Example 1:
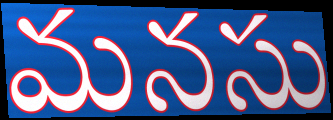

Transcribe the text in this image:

మనసు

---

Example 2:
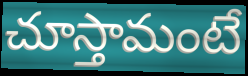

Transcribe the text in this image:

చూస్తామంటే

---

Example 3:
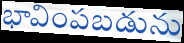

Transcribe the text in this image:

భావింపబడును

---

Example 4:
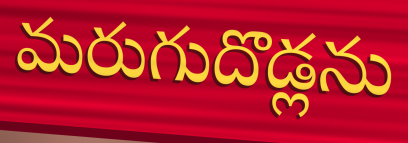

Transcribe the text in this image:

మరుగుదొడ్లను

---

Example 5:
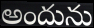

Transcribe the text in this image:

అందును